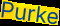
Purke